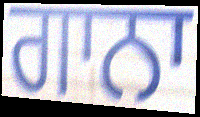
ਗਾਨਾ